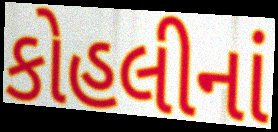
કોહલીનાં